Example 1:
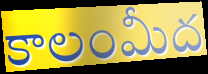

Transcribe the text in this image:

కాలంమీద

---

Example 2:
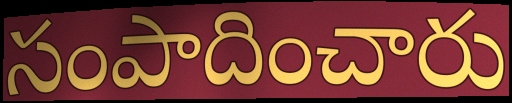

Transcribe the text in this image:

సంపాదించారు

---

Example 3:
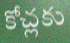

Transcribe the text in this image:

కోచ్లకు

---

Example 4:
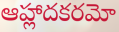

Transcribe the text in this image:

ఆహ్లాదకరమో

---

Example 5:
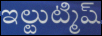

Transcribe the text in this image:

ఇల్టుట్మిష్